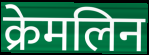
क्रेमलिन